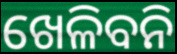
ଖେଳିବନି